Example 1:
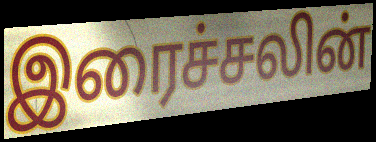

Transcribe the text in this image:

இரைச்சலின்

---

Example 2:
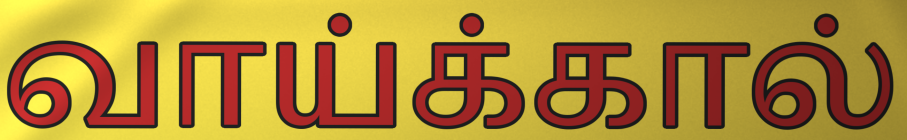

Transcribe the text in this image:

வாய்க்கால்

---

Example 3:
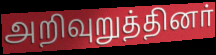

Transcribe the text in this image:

அறிவுறுத்தினர்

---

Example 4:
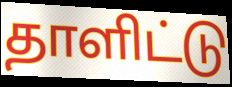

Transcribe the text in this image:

தாளிட்டு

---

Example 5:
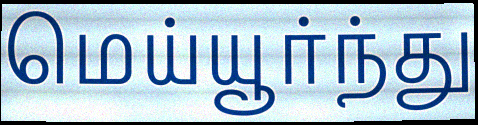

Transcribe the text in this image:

மெய்யூர்ந்து